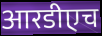
आरडीएच